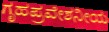
ಗೃಹಪ್ರವೇಶನೀಯ